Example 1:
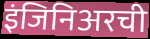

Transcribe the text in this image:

इंजिनिअरची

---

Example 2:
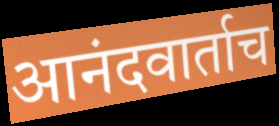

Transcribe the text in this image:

आनंदवार्ताच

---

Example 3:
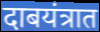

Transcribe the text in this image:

दाबयंत्रात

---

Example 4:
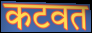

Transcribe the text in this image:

कटवत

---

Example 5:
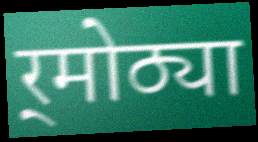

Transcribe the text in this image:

र्मोठ्या